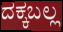
ದಕ್ಕಬಲ್ಲ